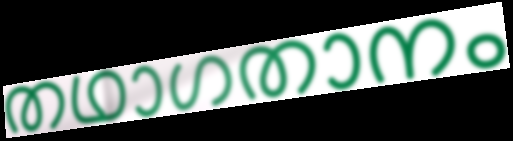
തഥാഗതാനം